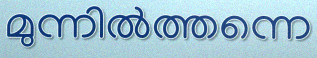
മുന്നിൽത്തന്നെ